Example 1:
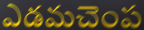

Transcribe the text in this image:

ఎడమచెంప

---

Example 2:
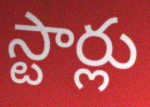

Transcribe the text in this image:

స్టార్లు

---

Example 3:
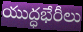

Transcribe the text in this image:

యుద్ధభేరీలు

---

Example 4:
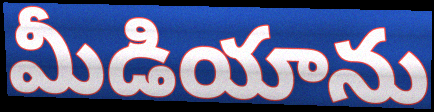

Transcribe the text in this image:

మీడియాను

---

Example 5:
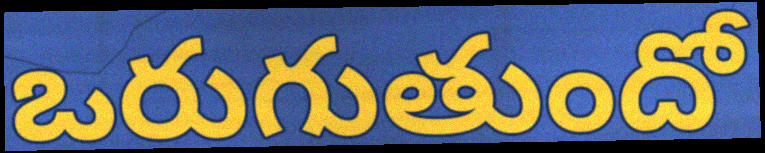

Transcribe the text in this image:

ఒరుగుతుందో